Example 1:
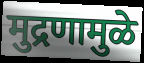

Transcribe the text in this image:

मुद्रणामुळे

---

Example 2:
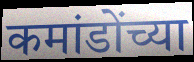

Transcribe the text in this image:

कमांडोंच्या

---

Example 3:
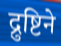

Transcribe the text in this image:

द्रुष्टिने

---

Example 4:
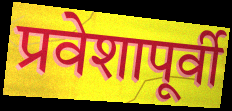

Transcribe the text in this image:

प्रवेशापूर्वी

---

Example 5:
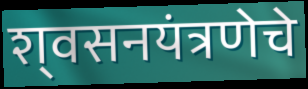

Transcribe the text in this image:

श्वसनयंत्रणेचे